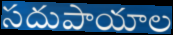
సదుపాయాల